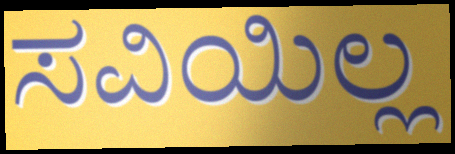
ಸವಿಯಿಲ್ಲ